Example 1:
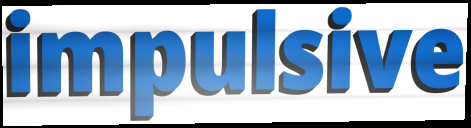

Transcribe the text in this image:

impulsive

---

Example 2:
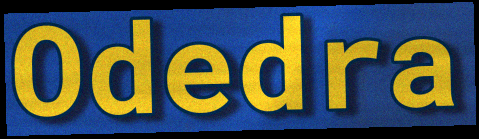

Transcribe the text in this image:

Odedra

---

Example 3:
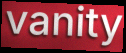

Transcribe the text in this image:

vanity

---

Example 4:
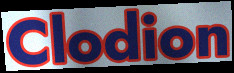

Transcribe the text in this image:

Clodion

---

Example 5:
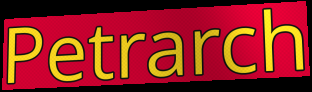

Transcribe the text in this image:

Petrarch